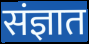
संज्ञात